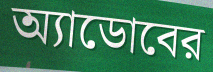
অ্যাডোবের